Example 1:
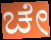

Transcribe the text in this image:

ಚೇ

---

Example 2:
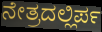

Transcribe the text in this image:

ನೇತ್ರದಲ್ಲಿರ್ಪ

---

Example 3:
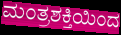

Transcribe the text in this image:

ಮಂತ್ರಶಕ್ತಿಯಿಂದ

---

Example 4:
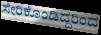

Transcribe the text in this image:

ಸೇರಿಕೊಂಡಿದ್ದರಿಂದ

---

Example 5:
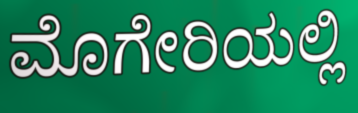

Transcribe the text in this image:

ಮೊಗೇರಿಯಲ್ಲಿ